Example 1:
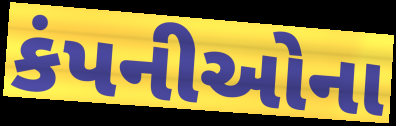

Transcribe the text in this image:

કંપનીઓના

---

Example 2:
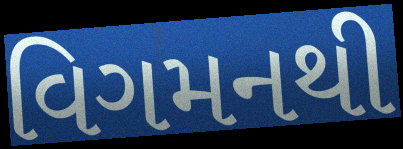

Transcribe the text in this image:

વિગમનથી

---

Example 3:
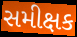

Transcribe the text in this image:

સમીક્ષક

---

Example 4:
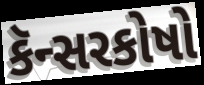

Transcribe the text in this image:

કૅન્સરકોષો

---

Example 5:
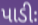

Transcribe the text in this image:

પાડીઃ